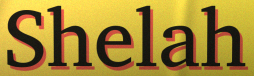
Shelah